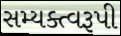
સમ્યક્ત્વરૂપી